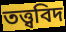
তত্ত্ববিদ